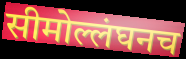
सीमोल्लंघनच